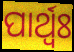
ପାର୍ଥ୍ବଃ